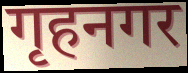
गृहनगर